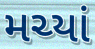
મચ્યાં